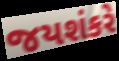
જયશંકરે